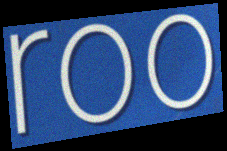
roo